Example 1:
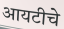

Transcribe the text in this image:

आयटीचे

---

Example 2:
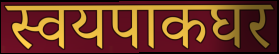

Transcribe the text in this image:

स्वयपाकघर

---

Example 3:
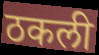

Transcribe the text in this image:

ठकली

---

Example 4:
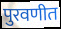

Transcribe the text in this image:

पुरवणीत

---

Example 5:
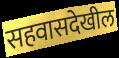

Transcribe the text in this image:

सहवासदेखील